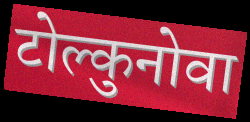
टोल्कुनोवा